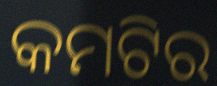
କମଟିର